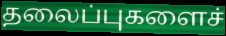
தலைப்புகளைச்